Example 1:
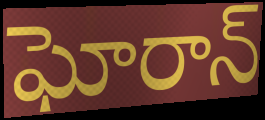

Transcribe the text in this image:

ఘోరాన్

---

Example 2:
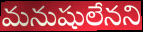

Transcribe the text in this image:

మనుషులేనని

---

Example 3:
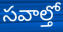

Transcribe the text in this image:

సవాల్తో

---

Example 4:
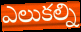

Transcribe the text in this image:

ఎలుకల్ని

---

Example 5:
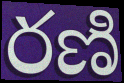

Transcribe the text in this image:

రణి